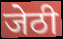
जेठी